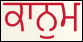
ਕਾਨੁਮ